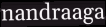
nandraaga